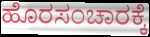
ಹೊರಸಂಚಾರಕ್ಕೆ